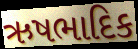
ઋષભાદિક